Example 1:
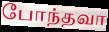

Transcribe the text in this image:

போந்தவா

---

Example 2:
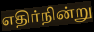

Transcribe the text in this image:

எதிர்நின்று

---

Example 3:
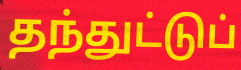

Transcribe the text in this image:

தந்துட்டுப்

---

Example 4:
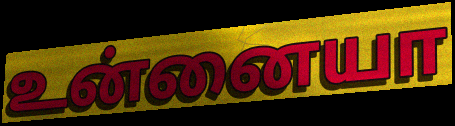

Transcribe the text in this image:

உன்னையா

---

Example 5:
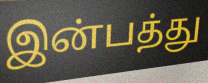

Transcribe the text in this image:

இன்பத்து